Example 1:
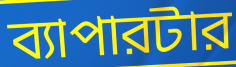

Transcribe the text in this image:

ব্যাপারটার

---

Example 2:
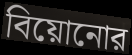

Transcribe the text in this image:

বিয়োনোর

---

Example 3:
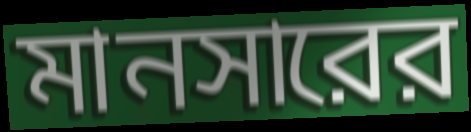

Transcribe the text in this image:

মানসারের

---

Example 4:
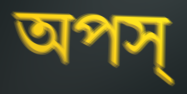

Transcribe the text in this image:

অপস্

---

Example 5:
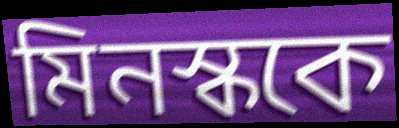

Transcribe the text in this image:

মিনস্ককে